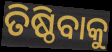
ତିଷ୍ଠିବାକୁ